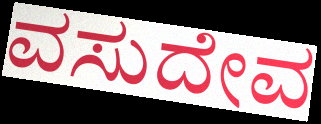
ವಸುದೇವ